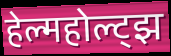
हेल्महोल्ट्झ